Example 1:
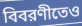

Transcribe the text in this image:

বিবরণীতেও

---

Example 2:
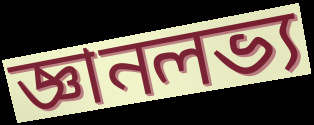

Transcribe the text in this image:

জ্ঞানলভ্য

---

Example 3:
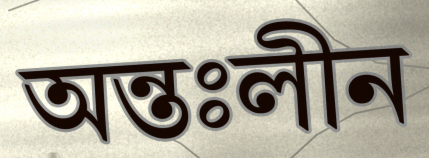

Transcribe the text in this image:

অন্তঃলীন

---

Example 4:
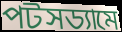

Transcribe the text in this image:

পটসড্যামে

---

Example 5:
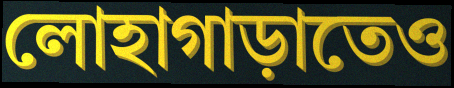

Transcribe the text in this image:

লোহাগাড়াতেও